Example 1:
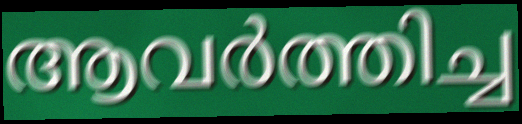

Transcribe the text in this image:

ആവർത്തിച്ച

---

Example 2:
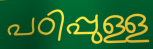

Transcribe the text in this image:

പഠിപ്പുള്ള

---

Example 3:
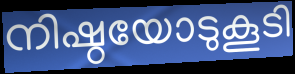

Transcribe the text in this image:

നിഷ്ഠയോടുകൂടി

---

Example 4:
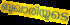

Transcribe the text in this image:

ബുഖാരിയുടെ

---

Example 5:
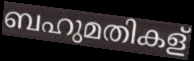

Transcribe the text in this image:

ബഹുമതികള്